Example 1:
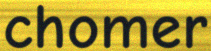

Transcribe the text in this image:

chomer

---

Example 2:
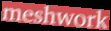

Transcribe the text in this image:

meshwork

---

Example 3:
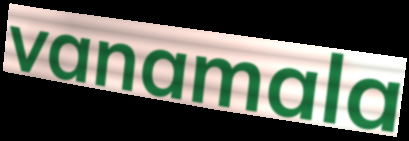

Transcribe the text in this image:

vanamala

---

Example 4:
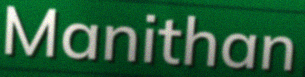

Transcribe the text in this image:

Manithan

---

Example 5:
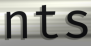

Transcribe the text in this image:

nts